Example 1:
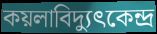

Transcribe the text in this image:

কয়লাবিদ্যুৎকেন্দ্র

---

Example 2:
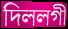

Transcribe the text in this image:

দিললগী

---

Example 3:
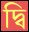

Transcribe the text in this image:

দ্বি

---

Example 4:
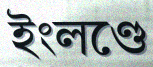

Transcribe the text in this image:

ইংলণ্ডে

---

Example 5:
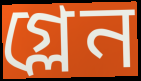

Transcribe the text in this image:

গ্লেন